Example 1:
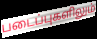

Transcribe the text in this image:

படைப்புகளிலும்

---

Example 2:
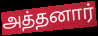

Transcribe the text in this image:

அத்தனார்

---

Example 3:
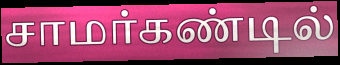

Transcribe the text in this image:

சாமர்கண்டில்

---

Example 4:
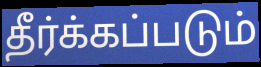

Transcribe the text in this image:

தீர்க்கப்படும்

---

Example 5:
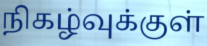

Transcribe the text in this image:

நிகழ்வுக்குள்